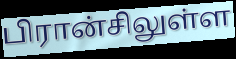
பிரான்சிலுள்ள